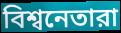
বিশ্বনেতারা